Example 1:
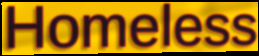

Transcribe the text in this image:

Homeless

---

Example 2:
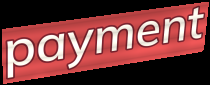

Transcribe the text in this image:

payment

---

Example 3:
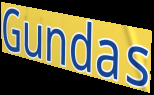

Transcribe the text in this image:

Gundas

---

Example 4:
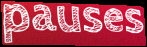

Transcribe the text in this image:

pauses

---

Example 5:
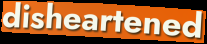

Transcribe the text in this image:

disheartened